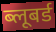
ब्लूबर्ड